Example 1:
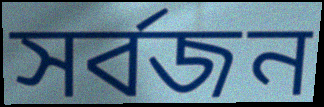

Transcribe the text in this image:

সৰ্বজন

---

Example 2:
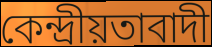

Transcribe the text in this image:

কেন্দ্ৰীয়তাবাদী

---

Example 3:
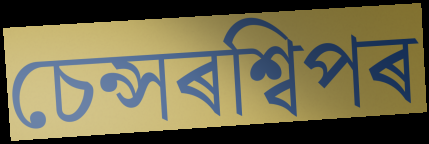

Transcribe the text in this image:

চেন্সৰশ্বিপৰ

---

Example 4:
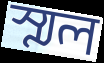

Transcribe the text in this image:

স্মল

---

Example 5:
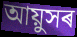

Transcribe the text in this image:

আয়ুসৰ